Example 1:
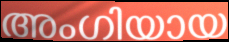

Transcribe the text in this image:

അംഗിയായ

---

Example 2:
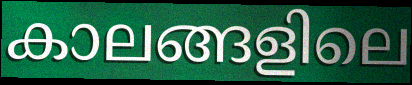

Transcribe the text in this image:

കാലങ്ങളിലെ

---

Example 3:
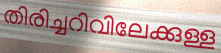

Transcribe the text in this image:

തിരിച്ചറിവിലേക്കുള്ള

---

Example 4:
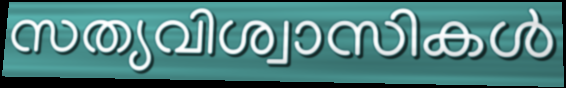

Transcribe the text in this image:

സത്യവിശ്വാസികൾ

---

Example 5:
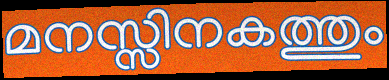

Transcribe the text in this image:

മനസ്സിനകത്തും